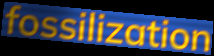
fossilization